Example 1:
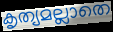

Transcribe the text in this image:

കൃത്യമല്ലാതെ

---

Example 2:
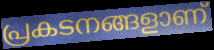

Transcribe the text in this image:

പ്രകടനങ്ങളാണ്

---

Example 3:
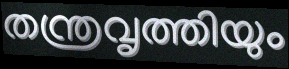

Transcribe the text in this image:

തന്ത്രവൃത്തിയും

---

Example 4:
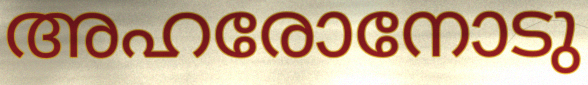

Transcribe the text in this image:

അഹരോനോടു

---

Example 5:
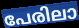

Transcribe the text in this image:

പേരിലാ